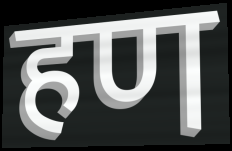
हण